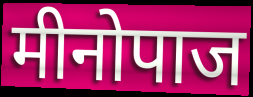
मीनोपाज